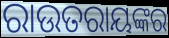
ରାଉତରାୟଙ୍କର